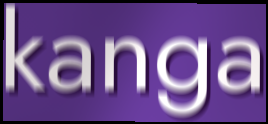
kanga